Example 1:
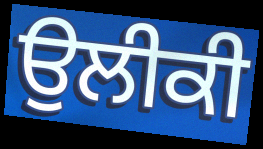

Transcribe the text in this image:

ਉਲੀਕੀ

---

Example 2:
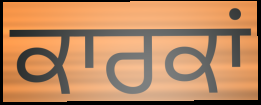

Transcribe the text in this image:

ਕਾਰਕਾਂ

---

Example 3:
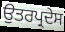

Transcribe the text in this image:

ਉਤਰਪ੍ਰਦੇਸ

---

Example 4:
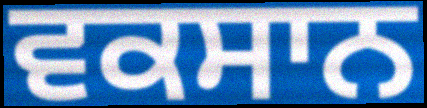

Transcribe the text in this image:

ਵਕਸਾਨ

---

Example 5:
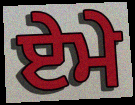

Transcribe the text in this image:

ਏਮੇ